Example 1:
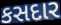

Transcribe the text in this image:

કસદાર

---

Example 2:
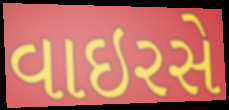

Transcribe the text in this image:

વાઇરસે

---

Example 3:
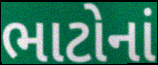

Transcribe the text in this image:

ભાટોનાં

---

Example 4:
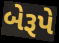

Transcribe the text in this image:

બેરૂપે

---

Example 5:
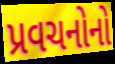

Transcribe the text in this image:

પ્રવચનોનો